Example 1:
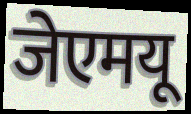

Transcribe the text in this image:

जेएमयू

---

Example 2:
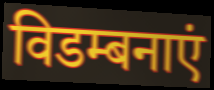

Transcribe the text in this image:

विडम्बनाएं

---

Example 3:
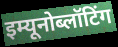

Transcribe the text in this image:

इम्यूनोब्लॉटिंग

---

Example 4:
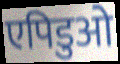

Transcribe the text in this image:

एपिडुओ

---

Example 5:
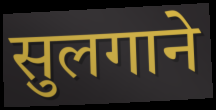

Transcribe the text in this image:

सुलगाने